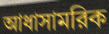
আধাসামরিক